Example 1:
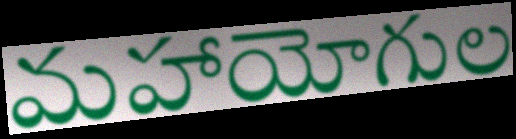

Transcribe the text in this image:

మహాయోగుల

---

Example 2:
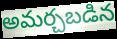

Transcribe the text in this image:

అమర్చబడిన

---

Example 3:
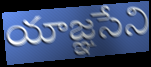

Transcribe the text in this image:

యాజ్ఞసేని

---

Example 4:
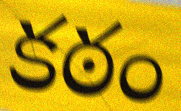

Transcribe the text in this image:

కఠం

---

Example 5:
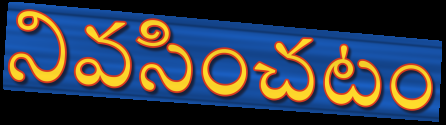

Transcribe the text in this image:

నివసించటం